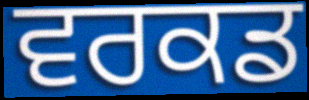
ਵਰਕਡ